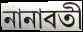
নানাবতী